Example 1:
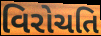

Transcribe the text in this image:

વિરોચતિ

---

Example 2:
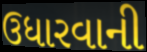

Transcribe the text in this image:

ઉધારવાની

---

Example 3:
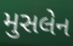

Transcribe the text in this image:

મુસલેન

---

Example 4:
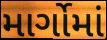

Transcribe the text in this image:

માર્ગોમાં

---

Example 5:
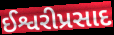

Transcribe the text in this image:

ઈશ્વરીપ્રસાદ